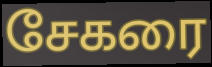
சேகரை